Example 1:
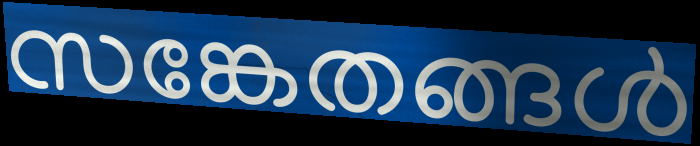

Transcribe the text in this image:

സങ്കേതങ്ങൾ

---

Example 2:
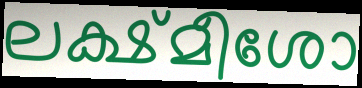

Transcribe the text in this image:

ലക്ഷ്മീശോ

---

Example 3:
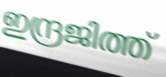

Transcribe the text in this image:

ഇന്ദ്രജിത്ത്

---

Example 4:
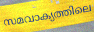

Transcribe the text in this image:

സമവാക്യത്തിലെ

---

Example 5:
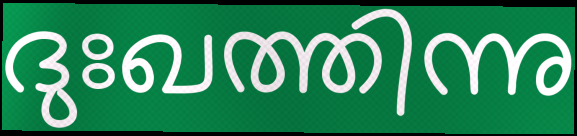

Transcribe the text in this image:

ദുഃഖത്തിന്നു